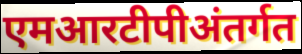
एमआरटीपीअंतर्गत